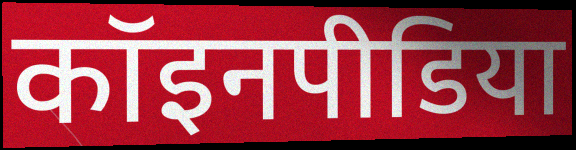
कॉइनपीडिया